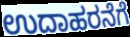
ಉದಾಹರನೆಗೆ